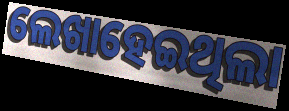
ଲେଖାହେଇଥିଲା